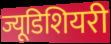
ज्यूडिशियरी